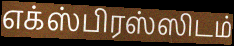
எக்ஸ்பிரஸ்ஸிடம்